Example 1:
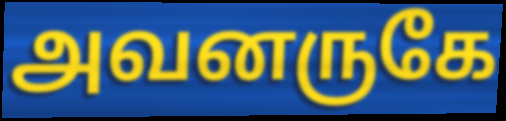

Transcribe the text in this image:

அவனருகே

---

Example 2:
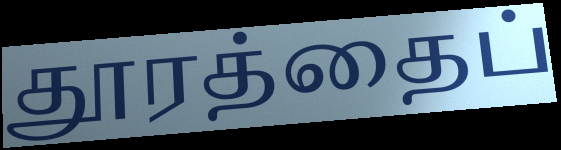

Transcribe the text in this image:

தூரத்தைப்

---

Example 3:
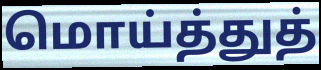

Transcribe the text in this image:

மொய்த்துத்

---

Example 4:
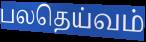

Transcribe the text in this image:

பலதெய்வம்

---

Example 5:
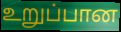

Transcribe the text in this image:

உறுப்பான